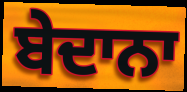
ਬੇਦਾਨਾ